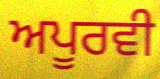
ਅਪੂਰਵੀ